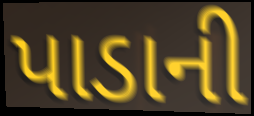
પાડાની